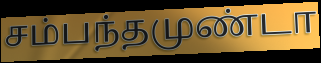
சம்பந்தமுண்டா